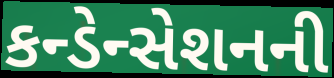
કન્ડેન્સેશનની